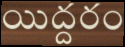
యిద్దరం